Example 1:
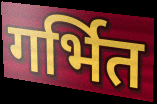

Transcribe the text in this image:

गर्भित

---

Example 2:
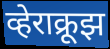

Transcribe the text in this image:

व्हेराक्रूझ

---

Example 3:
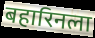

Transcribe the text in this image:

बहारिनला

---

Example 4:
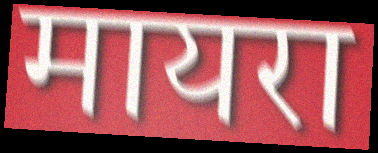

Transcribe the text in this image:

मायरा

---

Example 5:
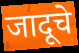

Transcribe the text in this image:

जादूचे